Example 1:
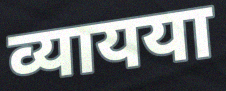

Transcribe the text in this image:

व्यायया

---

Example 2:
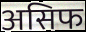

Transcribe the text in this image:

असिफ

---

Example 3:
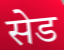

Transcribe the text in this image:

सेड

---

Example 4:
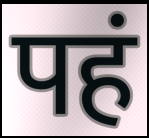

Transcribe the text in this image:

पहं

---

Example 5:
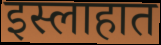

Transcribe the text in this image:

इस्लाहात